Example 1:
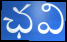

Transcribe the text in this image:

ఛవి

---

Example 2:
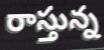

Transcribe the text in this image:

రాస్తున్న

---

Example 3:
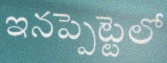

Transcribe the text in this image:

ఇనప్పెట్టెలో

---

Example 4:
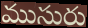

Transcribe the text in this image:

ముసురు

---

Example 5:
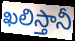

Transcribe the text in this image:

ఖలిస్తానీ